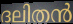
ദലിതൻ